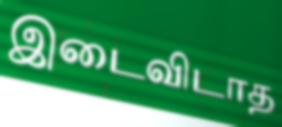
இடைவிடாத